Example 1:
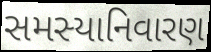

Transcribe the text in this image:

સમસ્યાનિવારણ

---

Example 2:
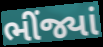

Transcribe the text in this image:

ભીંજ્યાં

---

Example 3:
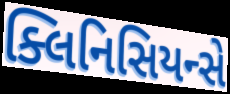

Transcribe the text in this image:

ક્લિનિસિયન્સે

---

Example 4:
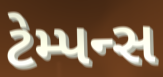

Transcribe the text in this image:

ટેમ્પન્સ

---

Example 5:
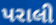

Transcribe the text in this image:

પરાલી